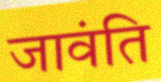
जावंति